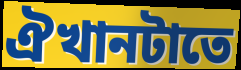
ঐখানটাতে